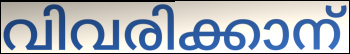
വിവരിക്കാന്